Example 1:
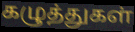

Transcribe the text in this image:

கழுத்துகள்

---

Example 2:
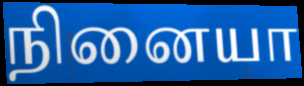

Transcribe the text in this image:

நினையா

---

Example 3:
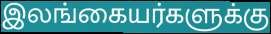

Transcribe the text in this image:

இலங்கையர்களுக்கு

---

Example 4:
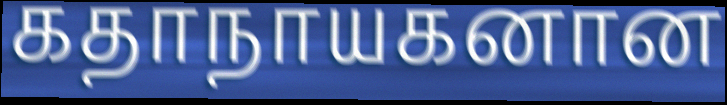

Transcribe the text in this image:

கதாநாயகனான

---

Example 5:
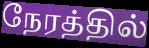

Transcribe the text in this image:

நேரத்தில்